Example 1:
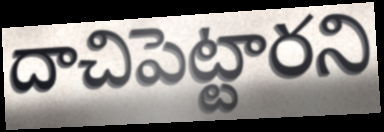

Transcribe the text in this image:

దాచిపెట్టారని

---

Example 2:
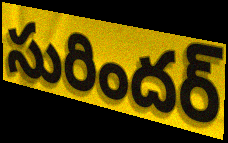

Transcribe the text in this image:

సురిందర్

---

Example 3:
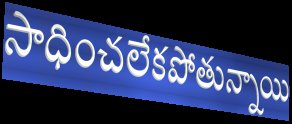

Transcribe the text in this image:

సాధించలేకపోతున్నాయి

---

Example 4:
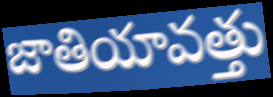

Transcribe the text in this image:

జాతియావత్తు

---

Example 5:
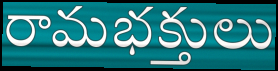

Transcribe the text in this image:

రామభక్తులు